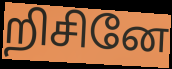
றிசினே